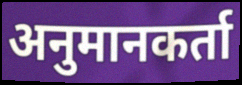
अनुमानकर्ता